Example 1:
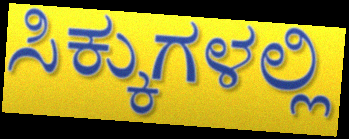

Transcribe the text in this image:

ಸಿಕ್ಕುಗಳಲ್ಲಿ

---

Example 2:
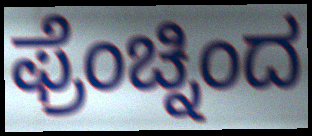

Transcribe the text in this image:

ಫ್ರೆಂಚ್ನಿಂದ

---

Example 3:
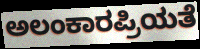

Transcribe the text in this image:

ಅಲಂಕಾರಪ್ರಿಯತೆ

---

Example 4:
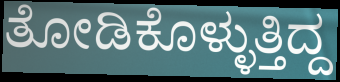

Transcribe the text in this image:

ತೋಡಿಕೊಳ್ಳುತ್ತಿದ್ದ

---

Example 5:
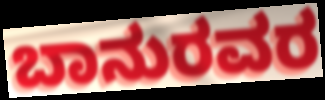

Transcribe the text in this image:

ಬಾನುರವರ